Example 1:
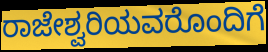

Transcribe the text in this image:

ರಾಜೇಶ್ವರಿಯವರೊಂದಿಗೆ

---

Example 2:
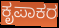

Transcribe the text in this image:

ಕೃಪಾಕರ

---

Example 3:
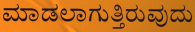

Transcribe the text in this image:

ಮಾಡಲಾಗುತ್ತಿರುವುದು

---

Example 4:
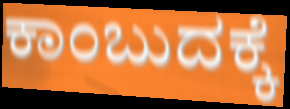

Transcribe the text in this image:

ಕಾಂಬುದಕ್ಕೆ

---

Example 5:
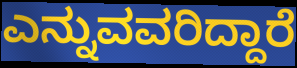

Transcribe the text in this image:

ಎನ್ನುವವರಿದ್ದಾರೆ